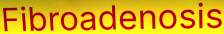
Fibroadenosis